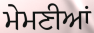
ਮੇਮਣੀਆਂ